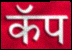
कॅप